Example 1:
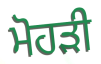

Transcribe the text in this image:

ਮੋਹੜੀ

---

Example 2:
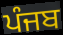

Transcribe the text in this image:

ਪੰਜਬ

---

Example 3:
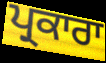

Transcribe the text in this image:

ਪ੍ਰਕਾਰਾ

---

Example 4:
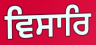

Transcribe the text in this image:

ਵਿਸਾਰਿ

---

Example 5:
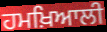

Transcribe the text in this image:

ਹਮਖ਼ਿਆਲੀ